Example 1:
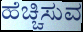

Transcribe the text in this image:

ಹೆಚ್ಚಿಸುವ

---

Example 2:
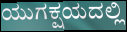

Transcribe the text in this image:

ಯುಗಕ್ಷಯದಲ್ಲಿ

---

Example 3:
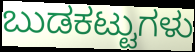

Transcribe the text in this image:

ಬುಡಕಟ್ಟುಗಳು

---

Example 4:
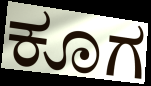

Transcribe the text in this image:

ಕೂಗ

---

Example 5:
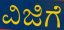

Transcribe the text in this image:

ವಿಜಿಗೆ